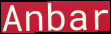
Anbar